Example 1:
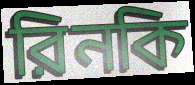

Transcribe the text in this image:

রিনকি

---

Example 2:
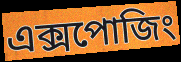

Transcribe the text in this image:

এক্সপোজিং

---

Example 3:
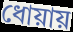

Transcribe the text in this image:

ধোয়ায়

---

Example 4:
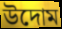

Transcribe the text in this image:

উদোম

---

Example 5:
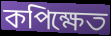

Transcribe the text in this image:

কপিক্ষেত